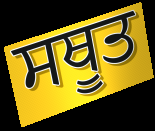
ਸਥੂਤ